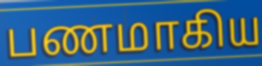
பணமாகிய